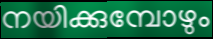
നയിക്കുമ്പോഴും